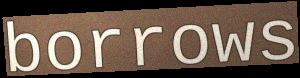
borrows